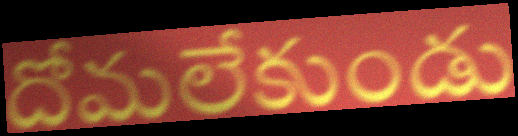
దోమలేకుండు